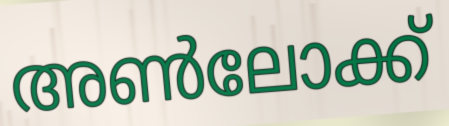
അൺലോക്ക്